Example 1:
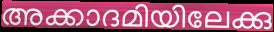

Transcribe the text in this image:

അക്കാദമിയിലേക്കു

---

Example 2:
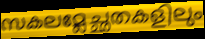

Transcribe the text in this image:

സകലമ്ലേച്ഛതകളിലും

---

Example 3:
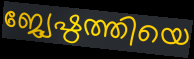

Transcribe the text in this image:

ജ്യേഷ്ഠത്തിയെ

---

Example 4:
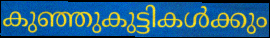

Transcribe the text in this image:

കുഞ്ഞുകുട്ടികൾക്കും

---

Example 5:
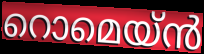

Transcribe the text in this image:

റൊമെയ്ൻ